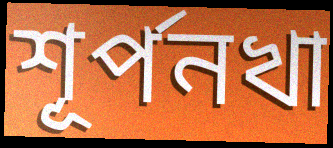
শূর্পনখা